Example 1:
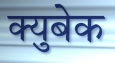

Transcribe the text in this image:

क्युबेक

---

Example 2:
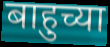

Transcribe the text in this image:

बाहुच्या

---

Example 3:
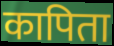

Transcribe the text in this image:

कापिता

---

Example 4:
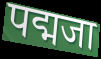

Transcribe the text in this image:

पद्मजा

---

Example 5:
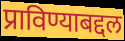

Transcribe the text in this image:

प्राविण्याबद्दल